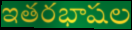
ఇతరభాషల